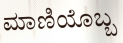
ಮಾಣಿಯೊಬ್ಬ